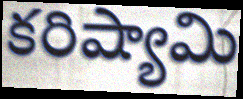
కరిష్యామి